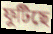
ফুটিছে